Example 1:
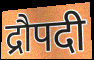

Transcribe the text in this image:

द्रौपदी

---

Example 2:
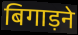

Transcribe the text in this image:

बिगाड़ने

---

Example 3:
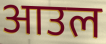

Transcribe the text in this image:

आउल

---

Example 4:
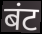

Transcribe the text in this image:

बंट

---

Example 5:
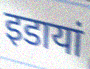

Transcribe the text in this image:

इडायां